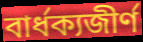
বার্ধক্যজীর্ণ